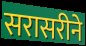
सरासरीने